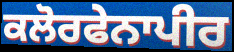
ਕਲੋਰਫੇਨਾਪੀਰ